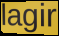
lagir